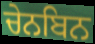
ਚੇਨਬਿਨ